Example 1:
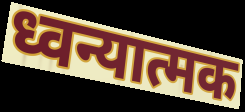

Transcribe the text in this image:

ध्वन्यात्मक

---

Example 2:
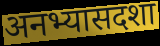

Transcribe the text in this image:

अनभ्यासदशा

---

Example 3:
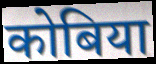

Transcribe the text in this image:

कोबिया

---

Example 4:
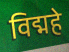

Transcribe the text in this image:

विद्महे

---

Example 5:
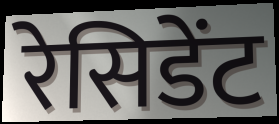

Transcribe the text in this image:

रेसिडेंट